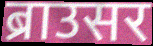
ब्राउसर